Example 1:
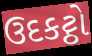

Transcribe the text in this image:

ઉદકટ્ઠો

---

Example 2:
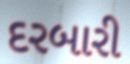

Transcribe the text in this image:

દરબારી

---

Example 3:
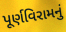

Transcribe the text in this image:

પૂર્ણવિરામનું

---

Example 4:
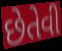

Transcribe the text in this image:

છેતેવી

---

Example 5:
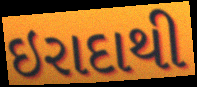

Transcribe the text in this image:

ઇરાદાથી